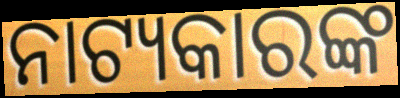
ନାଟ୍ୟକାରଙ୍କ